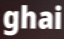
ghai